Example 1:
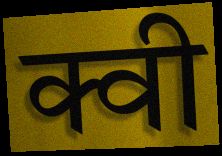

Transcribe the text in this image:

क्वी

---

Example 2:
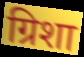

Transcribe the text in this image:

ग्रिशा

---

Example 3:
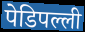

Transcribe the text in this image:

पेडिपल्ली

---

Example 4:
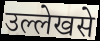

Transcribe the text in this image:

उल्लेखसे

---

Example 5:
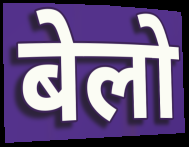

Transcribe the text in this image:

बेलो